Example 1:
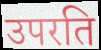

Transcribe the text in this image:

उपरति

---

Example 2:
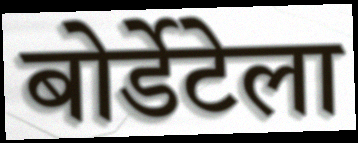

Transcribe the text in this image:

बोर्डेटेला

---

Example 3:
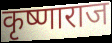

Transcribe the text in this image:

कृष्णाराज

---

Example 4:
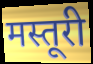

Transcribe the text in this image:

मस्तूरी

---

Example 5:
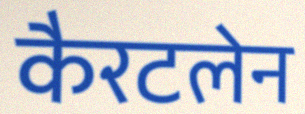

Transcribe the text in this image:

कैरटलेन